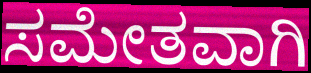
ಸಮೇತವಾಗಿ